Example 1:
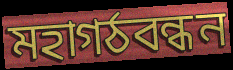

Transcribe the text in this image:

মহাগঠবন্ধন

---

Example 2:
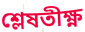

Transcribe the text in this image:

শ্লেষতীক্ষ্ণ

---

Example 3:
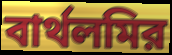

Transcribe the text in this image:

বার্থলমির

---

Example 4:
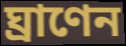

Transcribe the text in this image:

ঘ্রাণেন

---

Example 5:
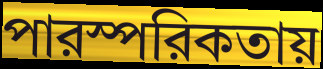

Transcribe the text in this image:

পারস্পরিকতায়